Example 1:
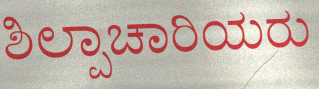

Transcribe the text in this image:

ಶಿಲ್ಪಾಚಾರಿಯರು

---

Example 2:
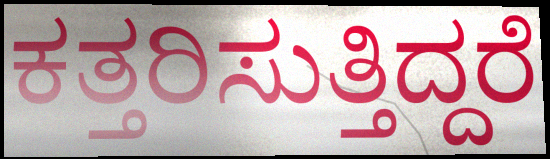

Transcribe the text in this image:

ಕತ್ತರಿಸುತ್ತಿದ್ದರೆ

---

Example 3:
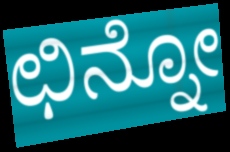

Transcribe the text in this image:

ಛಿನ್ನೋ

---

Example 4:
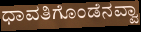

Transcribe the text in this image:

ಧಾವತಿಗೊಂಡೆನವ್ವಾ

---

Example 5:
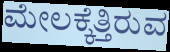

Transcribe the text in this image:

ಮೇಲಕ್ಕೆತ್ತಿರುವ